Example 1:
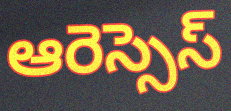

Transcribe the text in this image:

ఆరెస్సెస్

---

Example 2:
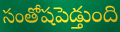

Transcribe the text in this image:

సంతోషపెడ్తుంది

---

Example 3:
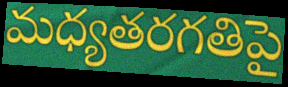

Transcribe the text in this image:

మధ్యతరగతిపై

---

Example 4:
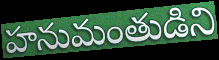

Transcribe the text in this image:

హనుమంతుడిని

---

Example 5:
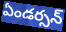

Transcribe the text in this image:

ఏండర్సన్